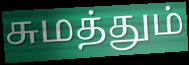
சுமத்தும்